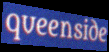
queenside